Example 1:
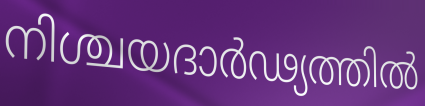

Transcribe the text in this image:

നിശ്ചയദാർഢ്യത്തിൽ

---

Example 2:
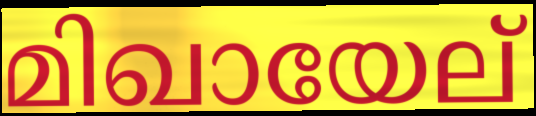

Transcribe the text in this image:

മിഖായേല്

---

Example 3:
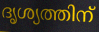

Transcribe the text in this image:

ദൃശ്യത്തിന്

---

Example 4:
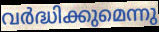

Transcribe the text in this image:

വർദ്ധിക്കുമെന്നു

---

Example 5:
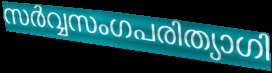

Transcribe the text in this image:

സർവ്വസംഗപരിത്യാഗി